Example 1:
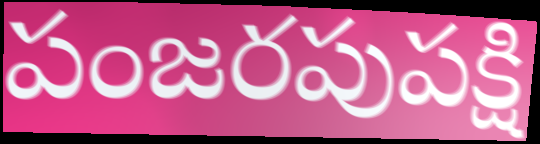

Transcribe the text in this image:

పంజరపుపక్షి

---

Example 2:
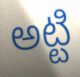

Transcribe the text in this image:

అట్టి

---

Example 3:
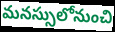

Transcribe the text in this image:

మనస్సులోనుంచి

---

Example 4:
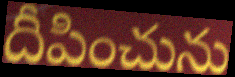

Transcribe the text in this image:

దీపించును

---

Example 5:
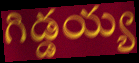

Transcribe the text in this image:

గిడ్డయ్య